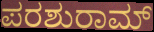
ಪರಶುರಾಮ್